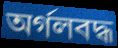
অর্গলবদ্ধ